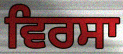
ਵਿਰਸਾ